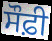
ਸੌਫ਼ੀ